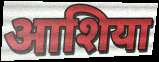
आशिया